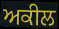
ਅਕੀਲ